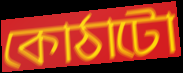
কোঠাটো